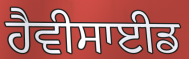
ਹੈਵੀਸਾਈਡ